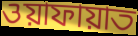
ওয়াফায়াত